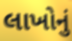
લાખોનું